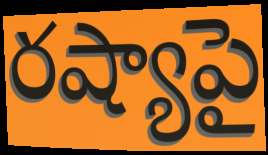
రష్యాపై